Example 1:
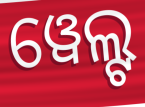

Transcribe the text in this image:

ୱେଲ୍ଟ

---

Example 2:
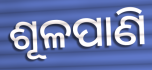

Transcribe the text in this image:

ଶୂଳପାଣି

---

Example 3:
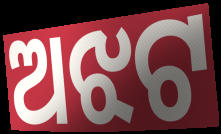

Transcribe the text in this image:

ଅଝଟ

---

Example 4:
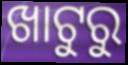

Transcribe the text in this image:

ଖାଟୁରୁ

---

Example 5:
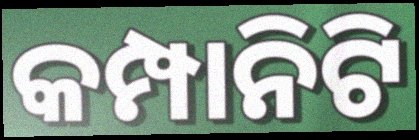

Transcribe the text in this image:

କମ୍ପାନିଟି